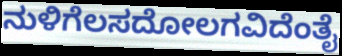
ನುಳಿಗೆಲಸದೋಲಗವಿದೆಂತೈ